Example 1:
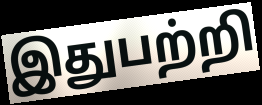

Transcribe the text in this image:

இதுபற்றி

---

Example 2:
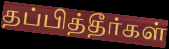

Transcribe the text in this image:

தப்பித்தீர்கள்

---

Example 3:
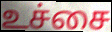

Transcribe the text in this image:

உச்சை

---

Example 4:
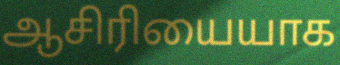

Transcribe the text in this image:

ஆசிரியையாக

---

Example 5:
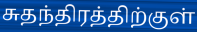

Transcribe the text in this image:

சுதந்திரத்திற்குள்